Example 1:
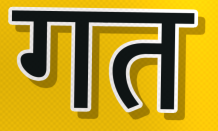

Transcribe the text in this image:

गत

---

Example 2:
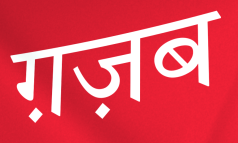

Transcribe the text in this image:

ग़ज़ब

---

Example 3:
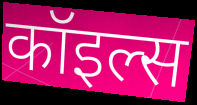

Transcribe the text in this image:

कॉइल्स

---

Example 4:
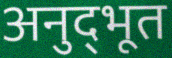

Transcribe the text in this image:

अनुद्भूत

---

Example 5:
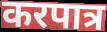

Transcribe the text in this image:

करपात्र